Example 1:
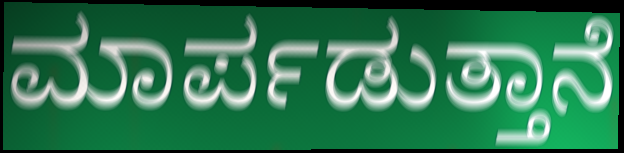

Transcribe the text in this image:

ಮಾರ್ಪಡುತ್ತಾನೆ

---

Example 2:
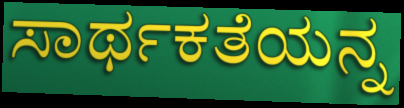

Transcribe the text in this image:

ಸಾರ್ಥಕತೆಯನ್ನ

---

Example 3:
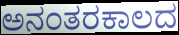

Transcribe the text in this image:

ಅನಂತರಕಾಲದ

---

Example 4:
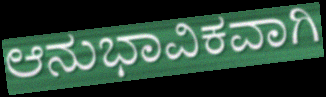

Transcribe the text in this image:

ಆನುಭಾವಿಕವಾಗಿ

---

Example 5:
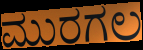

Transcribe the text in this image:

ಮುರಗಲ